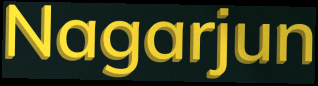
Nagarjun